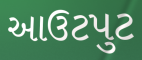
આઉટપુટ